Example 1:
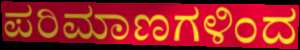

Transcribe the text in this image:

ಪರಿಮಾಣಗಳಿಂದ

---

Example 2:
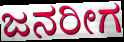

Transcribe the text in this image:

ಜನರೀಗ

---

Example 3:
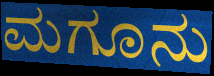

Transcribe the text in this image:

ಮಗೂನು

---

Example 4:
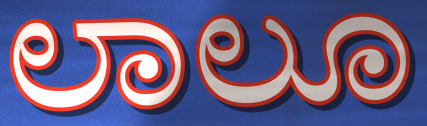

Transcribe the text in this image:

ಲಾಲೂ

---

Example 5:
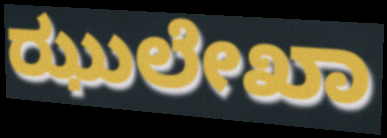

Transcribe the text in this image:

ಝುಲೇಖಾ